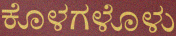
ಕೊಳಗಳೊಳು